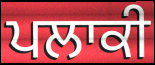
ਪਲਾਕੀ